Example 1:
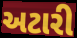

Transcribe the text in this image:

અટારી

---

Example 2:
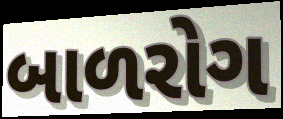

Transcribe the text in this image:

બાળરોગ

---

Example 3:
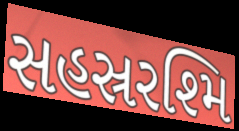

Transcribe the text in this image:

સહસ્રરશ્મિ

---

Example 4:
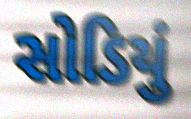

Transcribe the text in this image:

સોડિયું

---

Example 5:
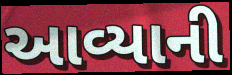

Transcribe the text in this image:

આવ્યાની